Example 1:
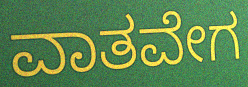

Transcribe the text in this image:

ವಾತವೇಗ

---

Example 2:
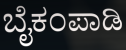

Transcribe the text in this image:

ಬೈಕಂಪಾಡಿ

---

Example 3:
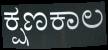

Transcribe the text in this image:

ಕ್ಷಣಕಾಲ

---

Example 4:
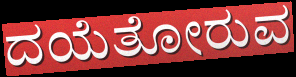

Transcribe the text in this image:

ದಯೆತೋರುವ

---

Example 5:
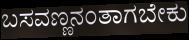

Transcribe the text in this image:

ಬಸವಣ್ಣನಂತಾಗಬೇಕು